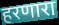
हरणारा